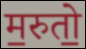
म॒रुतो॒